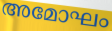
അമോഘം